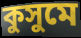
কুসুমে